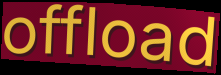
offload